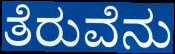
ತೆರುವೆನು